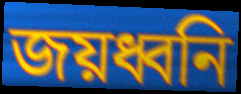
জয়ধ্বনি